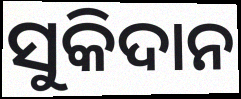
ସୁକିଦାନ